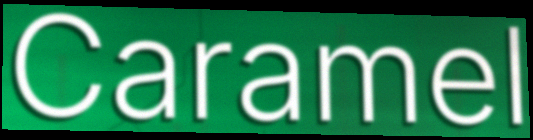
Caramel